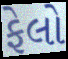
ફેલો